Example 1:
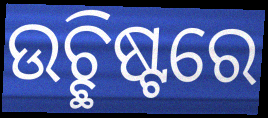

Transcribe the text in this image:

ଉଚ୍ଛିଷ୍ଟରେ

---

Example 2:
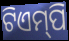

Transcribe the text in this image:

ଟିଏମ୍‌ପି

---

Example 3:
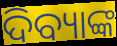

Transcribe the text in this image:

ଦିବ୍ୟାଙ୍କ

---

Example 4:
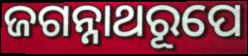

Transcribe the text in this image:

ଜଗନ୍ନାଥରୂପେ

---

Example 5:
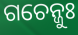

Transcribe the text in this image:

ଗଚେନ୍ଜୁଃ